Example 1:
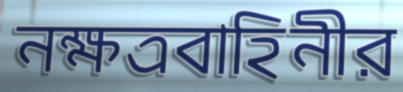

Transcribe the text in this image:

নক্ষত্রবাহিনীর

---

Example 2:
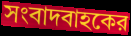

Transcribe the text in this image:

সংবাদবাহকের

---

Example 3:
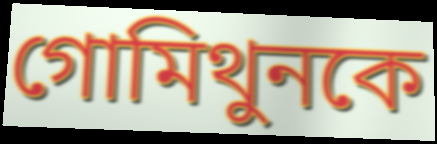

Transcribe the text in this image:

গোমিথুনকে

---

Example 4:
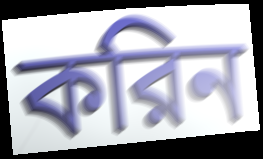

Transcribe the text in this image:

করিন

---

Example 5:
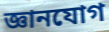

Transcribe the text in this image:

জ্ঞানযোগ